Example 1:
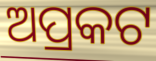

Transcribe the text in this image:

ଅପ୍ରକଟ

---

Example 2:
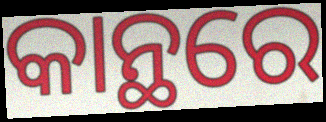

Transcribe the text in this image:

କାନ୍ଥରେ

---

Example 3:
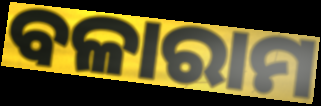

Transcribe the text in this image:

ବଳାରାମ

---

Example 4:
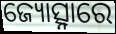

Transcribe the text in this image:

ଜ୍ୟୋତ୍ସ୍ନାରେ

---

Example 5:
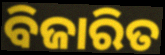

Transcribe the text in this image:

ବିଜାରିତ